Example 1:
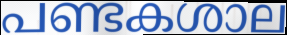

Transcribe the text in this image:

പണ്ടകശാല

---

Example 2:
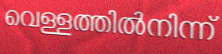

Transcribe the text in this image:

വെള്ളത്തിൽനിന്ന്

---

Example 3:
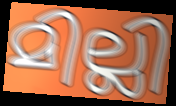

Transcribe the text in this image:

മില്ലി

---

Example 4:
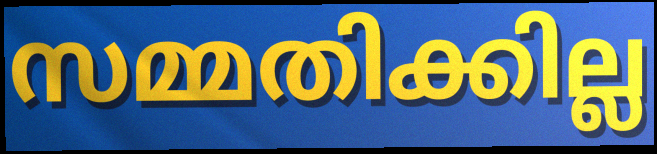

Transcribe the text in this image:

സമ്മതിക്കില്ല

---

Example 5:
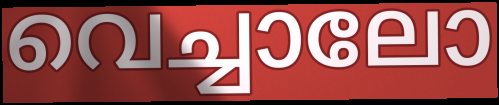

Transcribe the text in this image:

വെച്ചാലോ